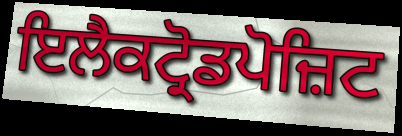
ਇਲੈਕਟ੍ਰੋਡਪੋਜ਼ਿਟ